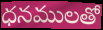
ధనములతో